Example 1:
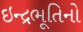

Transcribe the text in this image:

ઇન્દ્રભૂતિનો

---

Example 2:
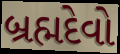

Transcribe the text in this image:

બ્રહ્મદેવો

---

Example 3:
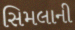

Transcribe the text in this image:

સિમલાની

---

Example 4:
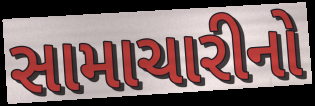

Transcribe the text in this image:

સામાચારીનો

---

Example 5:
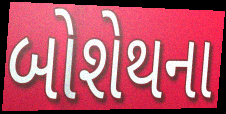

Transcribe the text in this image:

બોશેથના